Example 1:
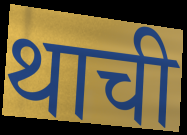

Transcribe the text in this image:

थाची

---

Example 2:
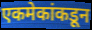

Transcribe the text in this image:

एकमेकांकडून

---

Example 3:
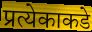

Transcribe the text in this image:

प्रत्येकाकडे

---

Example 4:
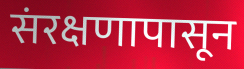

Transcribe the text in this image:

संरक्षणापासून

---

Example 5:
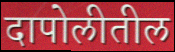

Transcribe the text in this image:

दापोलीतील